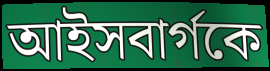
আইসবার্গকে